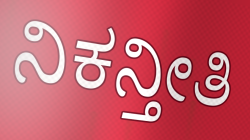
ನಿಕನ್ತೀತಿ